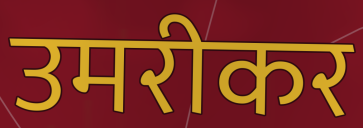
उमरीकर